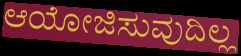
ಆಯೋಜಿಸುವುದಿಲ್ಲ